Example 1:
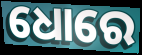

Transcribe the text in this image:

ଧୋରେ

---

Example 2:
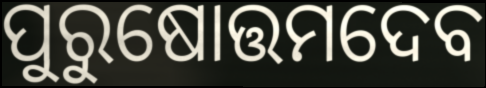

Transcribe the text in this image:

ପୁରୁଷୋତ୍ତମଦେବ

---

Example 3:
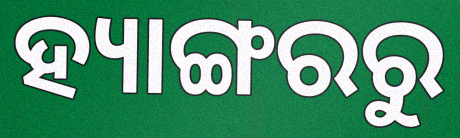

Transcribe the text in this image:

ହ୍ୟାଙ୍ଗରରୁ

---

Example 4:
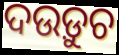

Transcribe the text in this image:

ଦଉଡ଼ୁଚ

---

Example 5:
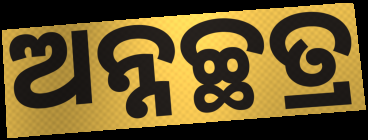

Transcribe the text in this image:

ଅନ୍ନଚ୍ଛତ୍ର